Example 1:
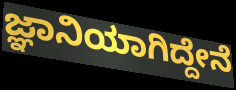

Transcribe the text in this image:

ಜ್ಞಾನಿಯಾಗಿದ್ದೇನೆ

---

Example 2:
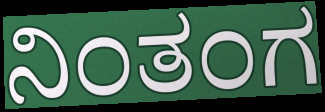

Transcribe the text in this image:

ನಿಂತಂಗ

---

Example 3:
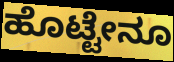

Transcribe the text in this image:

ಹೊಟ್ಟೇನೂ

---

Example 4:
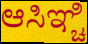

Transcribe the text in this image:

ಆಸಿಞ್ಚಿ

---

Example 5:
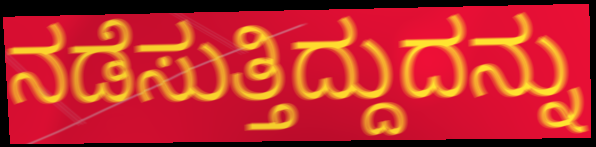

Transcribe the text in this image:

ನಡೆಸುತ್ತಿದ್ದುದನ್ನು